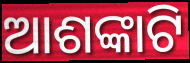
ଆଶଙ୍କାଟି